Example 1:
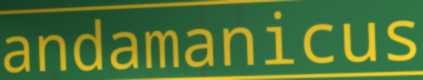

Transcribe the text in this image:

andamanicus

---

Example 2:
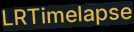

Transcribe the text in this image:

LRTimelapse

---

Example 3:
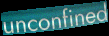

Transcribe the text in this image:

unconfined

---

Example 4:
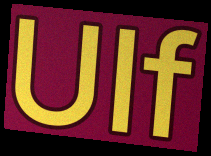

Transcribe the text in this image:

Ulf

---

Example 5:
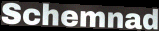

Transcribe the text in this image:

Schemnad